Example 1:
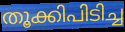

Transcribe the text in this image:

തൂക്കിപിടിച്ച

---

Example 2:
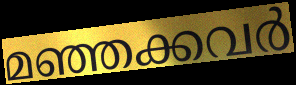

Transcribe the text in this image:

മഞ്ഞക്കവർ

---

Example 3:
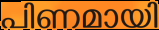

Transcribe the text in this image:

പിണമായി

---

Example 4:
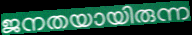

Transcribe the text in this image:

ജനതയായിരുന്ന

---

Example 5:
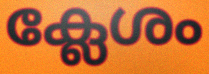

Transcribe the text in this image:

ക്ലേശം